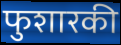
फुशारकी